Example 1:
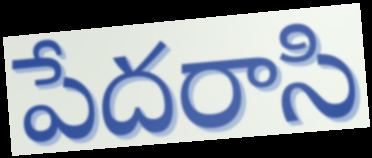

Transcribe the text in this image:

పేదరాసి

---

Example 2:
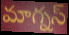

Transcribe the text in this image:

మాగ్నస్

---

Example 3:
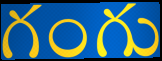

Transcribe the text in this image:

గంగు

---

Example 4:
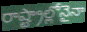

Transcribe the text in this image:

రాష్ట్రాల్లోనైనా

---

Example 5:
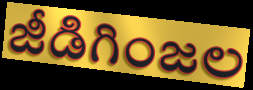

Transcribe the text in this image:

జీడిగింజల